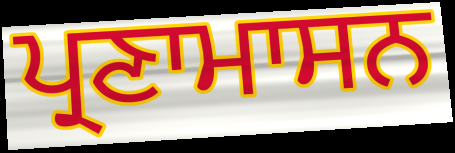
ਪ੍ਰਣਾਮਾਸਨ